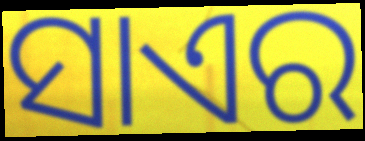
ସାଏର